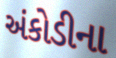
અંકોડીના